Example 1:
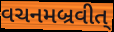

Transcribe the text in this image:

વચનમબ્રવીત્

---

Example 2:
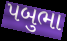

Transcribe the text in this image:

પબુભા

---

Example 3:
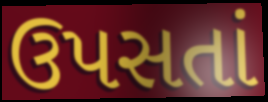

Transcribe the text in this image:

ઉપસતાં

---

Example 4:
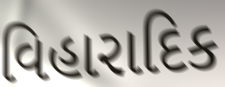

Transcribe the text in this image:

વિહારાદિક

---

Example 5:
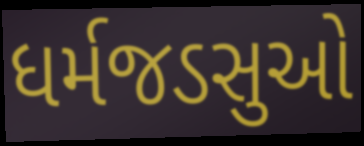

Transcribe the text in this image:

ધર્મજડસુઓ